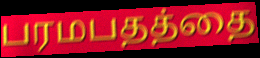
பரமபதத்தை